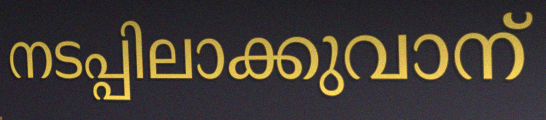
നടപ്പിലാക്കുവാന്